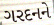
ગરદનને